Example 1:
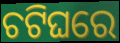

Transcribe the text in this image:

ଚଟିଘରେ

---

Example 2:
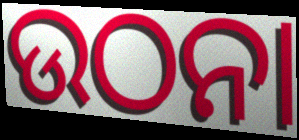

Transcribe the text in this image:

ଉଠନା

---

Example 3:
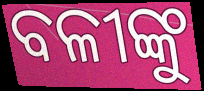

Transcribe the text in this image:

ବଳୀଙ୍କୁ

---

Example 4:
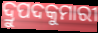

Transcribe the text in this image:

ଦ୍ରୁପଦକୁମାରୀ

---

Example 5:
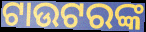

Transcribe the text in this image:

ଟାଉଟରଙ୍କ